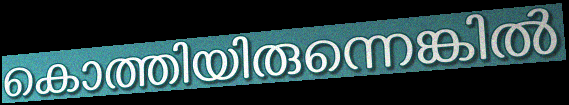
കൊത്തിയിരുന്നെങ്കിൽ